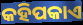
କହିପକାଏ